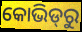
କୋଭିଡ୍‌ରୁ